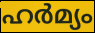
ഹർമ്യം